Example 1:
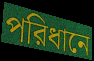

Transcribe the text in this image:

পরিধানে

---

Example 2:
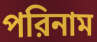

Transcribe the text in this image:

পরিনাম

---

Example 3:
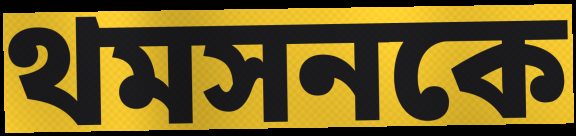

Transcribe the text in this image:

থমসনকে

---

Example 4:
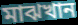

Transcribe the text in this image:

মাঝখান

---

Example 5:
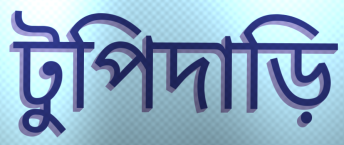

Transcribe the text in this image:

টুপিদাড়ি